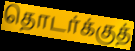
தொடர்க்குத்